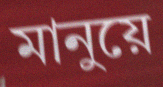
মানুয়ে